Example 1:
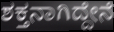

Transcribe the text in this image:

ಶಕ್ತನಾಗಿದ್ದೇನೆ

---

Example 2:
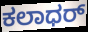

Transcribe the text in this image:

ಕಲಾಧರ್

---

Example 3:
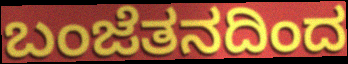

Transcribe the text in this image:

ಬಂಜೆತನದಿಂದ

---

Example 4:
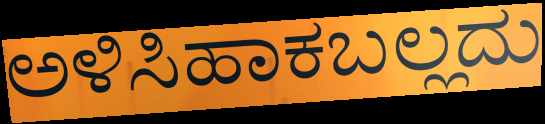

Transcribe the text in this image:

ಅಳಿಸಿಹಾಕಬಲ್ಲದು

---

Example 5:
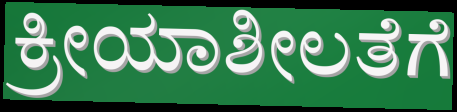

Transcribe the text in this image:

ಕ್ರೀಯಾಶೀಲತೆಗೆ